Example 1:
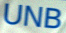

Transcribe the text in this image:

UNB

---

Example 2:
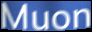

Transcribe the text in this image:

Muon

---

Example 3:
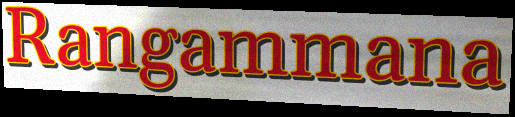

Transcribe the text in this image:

Rangammana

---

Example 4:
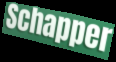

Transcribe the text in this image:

Schapper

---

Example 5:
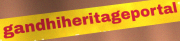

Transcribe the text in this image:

gandhiheritageportal